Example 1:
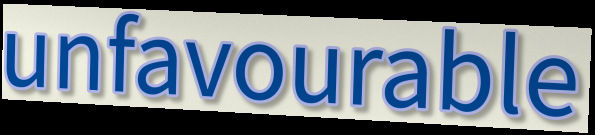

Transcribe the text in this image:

unfavourable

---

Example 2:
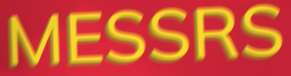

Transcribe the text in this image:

MESSRS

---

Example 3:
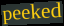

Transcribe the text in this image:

peeked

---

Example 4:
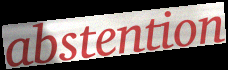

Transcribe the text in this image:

abstention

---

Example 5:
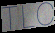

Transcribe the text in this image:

TLC